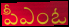
పీఎంఓ